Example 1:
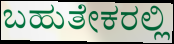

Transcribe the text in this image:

ಬಹುತೇಕರಲ್ಲಿ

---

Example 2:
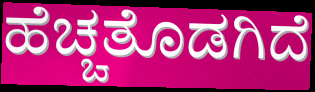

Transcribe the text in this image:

ಹೆಚ್ಚತೊಡಗಿದೆ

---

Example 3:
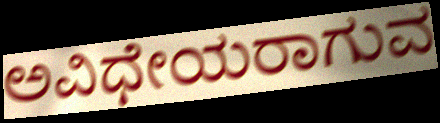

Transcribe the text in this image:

ಅವಿಧೇಯರಾಗುವ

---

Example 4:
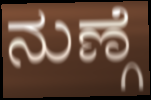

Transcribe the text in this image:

ನುಣ್ಗೆ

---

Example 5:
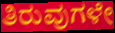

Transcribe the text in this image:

ತಿರುವುಗಳೇ